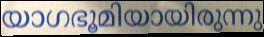
യാഗഭൂമിയായിരുന്നു